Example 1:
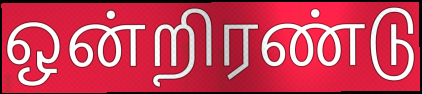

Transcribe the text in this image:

ஒன்றிரண்டு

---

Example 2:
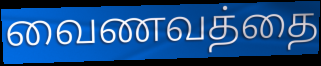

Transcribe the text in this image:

வைணவத்தை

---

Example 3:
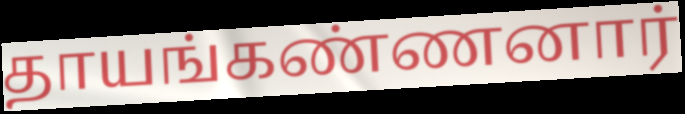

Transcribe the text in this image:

தாயங்கண்ணனார்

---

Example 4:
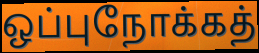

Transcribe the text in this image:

ஒப்புநோக்கத்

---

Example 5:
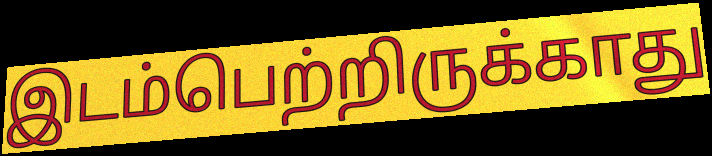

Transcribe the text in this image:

இடம்பெற்றிருக்காது